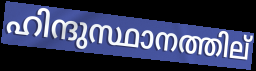
ഹിന്ദുസ്ഥാനത്തില്